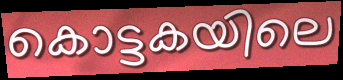
കൊട്ടകയിലെ